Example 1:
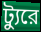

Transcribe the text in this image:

ট্যুরে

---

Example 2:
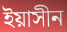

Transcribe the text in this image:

ইয়াসীন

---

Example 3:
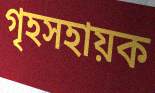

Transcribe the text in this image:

গৃহসহায়ক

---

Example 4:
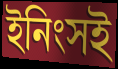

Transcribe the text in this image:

ইনিংসই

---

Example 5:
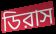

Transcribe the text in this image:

ডিরাস